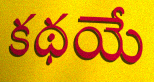
కథయే